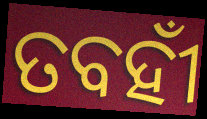
ତବହୀଁ